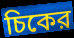
চিকের